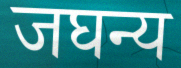
जघन्य